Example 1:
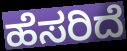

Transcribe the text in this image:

ಹೆಸರಿದೆ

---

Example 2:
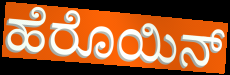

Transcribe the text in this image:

ಹೆರೊಯಿನ್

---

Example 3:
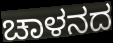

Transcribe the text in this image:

ಚಾಳನದ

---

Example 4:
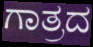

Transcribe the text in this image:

ಗಾತ್ರದ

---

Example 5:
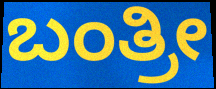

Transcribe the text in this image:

ಬಂತ್ರೀ